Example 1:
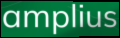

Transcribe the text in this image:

amplius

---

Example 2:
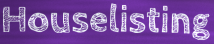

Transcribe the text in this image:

Houselisting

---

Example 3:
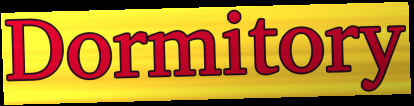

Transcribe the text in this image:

Dormitory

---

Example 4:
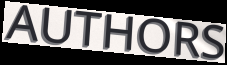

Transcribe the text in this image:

AUTHORS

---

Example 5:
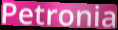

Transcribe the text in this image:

Petronia